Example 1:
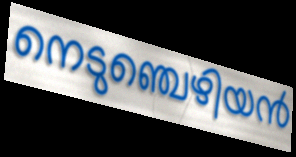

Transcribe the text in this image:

നെടുഞ്ചെഴിയൻ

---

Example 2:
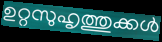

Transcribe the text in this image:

ഉറ്റസുഹൃത്തുക്കൾ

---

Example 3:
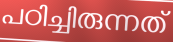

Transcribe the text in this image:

പഠിച്ചിരുന്നത്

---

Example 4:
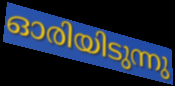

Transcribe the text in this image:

ഓരിയിടുന്നു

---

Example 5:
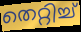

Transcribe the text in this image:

തെറ്റിച്ച്